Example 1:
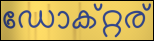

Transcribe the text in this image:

ഡോക്റ്റര്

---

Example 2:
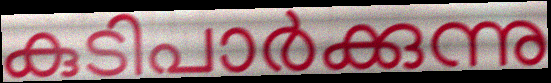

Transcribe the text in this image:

കുടിപാർക്കുന്നു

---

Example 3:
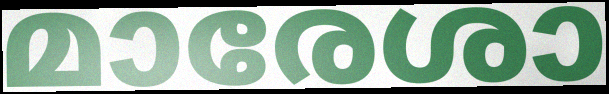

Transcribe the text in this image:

മാരേശാ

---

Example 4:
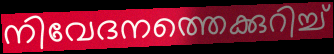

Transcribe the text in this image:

നിവേദനത്തെക്കുറിച്ച്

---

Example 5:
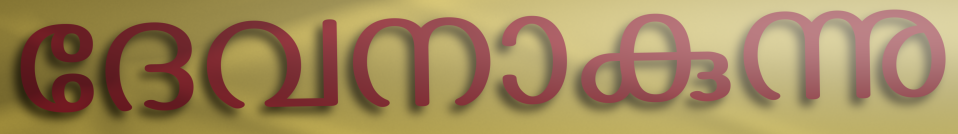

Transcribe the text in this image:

ദേവനാകുന്നു